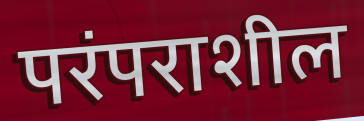
परंपराशील